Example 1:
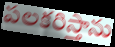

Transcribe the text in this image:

పలకరిస్తాను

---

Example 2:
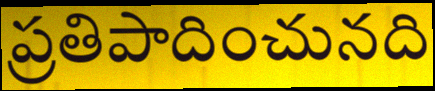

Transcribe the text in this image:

ప్రతిపాదించునది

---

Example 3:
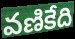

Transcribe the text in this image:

వణికేది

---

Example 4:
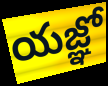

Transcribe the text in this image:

యజ్ఞో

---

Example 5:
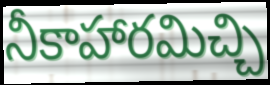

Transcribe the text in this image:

నీకాహారమిచ్చి